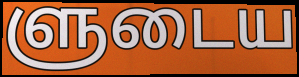
ளுடைய